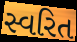
સ્વરિત